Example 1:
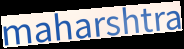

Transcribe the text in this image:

maharshtra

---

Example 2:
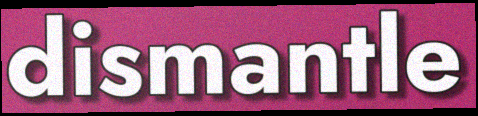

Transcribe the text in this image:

dismantle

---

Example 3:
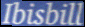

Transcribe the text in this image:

Ibisbill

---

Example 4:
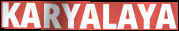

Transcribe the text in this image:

KARYALAYA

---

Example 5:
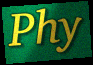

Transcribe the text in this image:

Phy